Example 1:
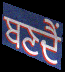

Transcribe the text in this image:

ਬਣਦੈਂ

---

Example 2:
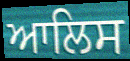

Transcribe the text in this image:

ਆਲਿਸ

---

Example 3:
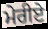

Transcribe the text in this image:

ਮੇਰੀਏ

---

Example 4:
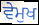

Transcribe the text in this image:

ਵੇਮੁਖ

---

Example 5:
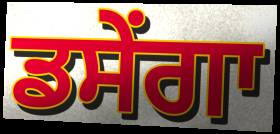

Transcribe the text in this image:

ਡਸੇਂਗਾ